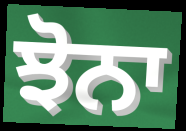
ਝੋਨਾ